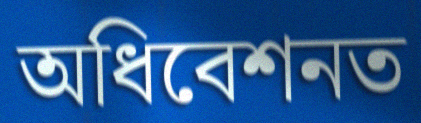
অধিবেশনত